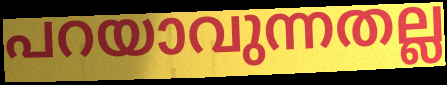
പറയാവുന്നതല്ല